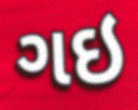
ગઇ